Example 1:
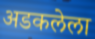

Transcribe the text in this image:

अडकलेला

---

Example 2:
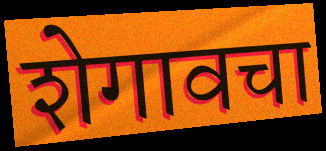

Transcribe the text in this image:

शेगावचा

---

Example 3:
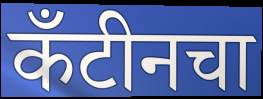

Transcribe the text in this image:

कँटीनचा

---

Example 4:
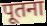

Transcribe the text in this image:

पूतना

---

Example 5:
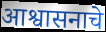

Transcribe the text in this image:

आश्वासनाचे